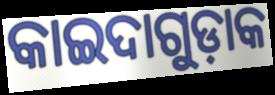
କାଇଦାଗୁଡ଼ାକ